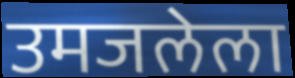
उमजलेला